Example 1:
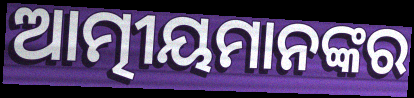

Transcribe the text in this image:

ଆତ୍ମୀୟମାନଙ୍କର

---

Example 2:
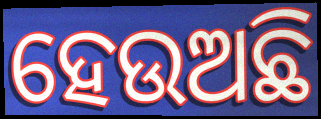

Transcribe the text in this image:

ହେଉଅଛି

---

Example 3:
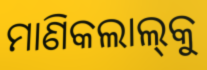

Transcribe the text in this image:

ମାଣିକଲାଲ୍‍କୁ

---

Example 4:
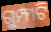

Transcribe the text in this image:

ଗୁମ୍ଫାଟି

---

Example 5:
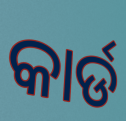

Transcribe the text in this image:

କାର୍ଡ